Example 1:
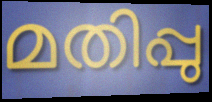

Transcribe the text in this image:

മതിപ്പു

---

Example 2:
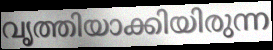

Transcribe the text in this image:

വൃത്തിയാക്കിയിരുന്ന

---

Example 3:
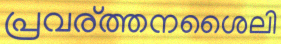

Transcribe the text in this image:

പ്രവര്ത്തനശൈലി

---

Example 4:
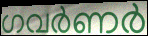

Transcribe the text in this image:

ഗവർണർ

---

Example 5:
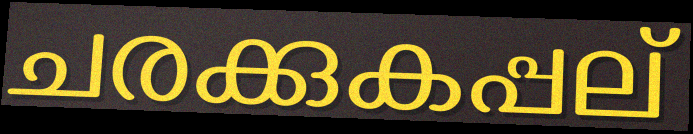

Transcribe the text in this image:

ചരക്കുകപ്പല്